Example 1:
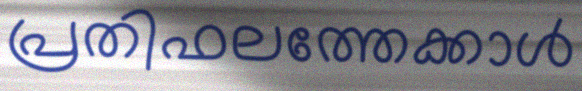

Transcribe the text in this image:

പ്രതിഫലത്തേക്കാൾ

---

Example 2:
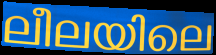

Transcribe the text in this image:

ലീലയിലെ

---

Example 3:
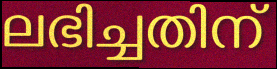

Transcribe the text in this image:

ലഭിച്ചതിന്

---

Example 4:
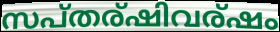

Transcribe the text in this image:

സപ്തര്ഷിവര്ഷം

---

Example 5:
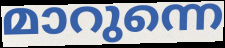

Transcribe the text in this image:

മാറുന്നെ